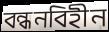
বন্ধনবিহীন